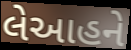
લેઆહને